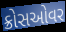
ક્રોસઓવર